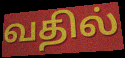
வதில்